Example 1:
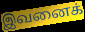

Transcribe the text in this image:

இவனைக்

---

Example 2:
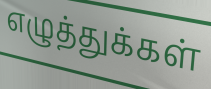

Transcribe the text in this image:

எழுத்துக்கள்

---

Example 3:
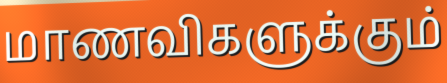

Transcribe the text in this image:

மாணவிகளுக்கும்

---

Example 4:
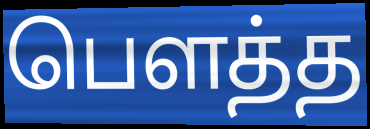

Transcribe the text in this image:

பௌத்த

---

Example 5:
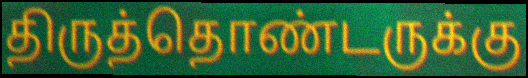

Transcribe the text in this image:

திருத்தொண்டருக்கு